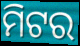
ମିଟର